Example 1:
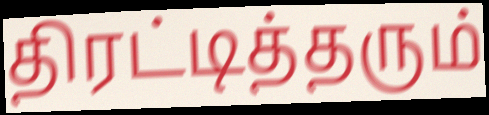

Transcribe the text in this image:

திரட்டித்தரும்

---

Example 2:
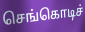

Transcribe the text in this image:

செங்கொடிச்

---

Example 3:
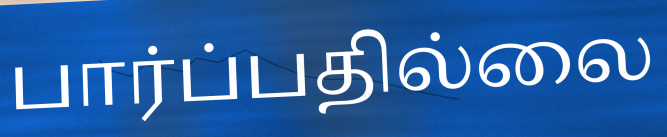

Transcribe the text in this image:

பார்ப்பதில்லை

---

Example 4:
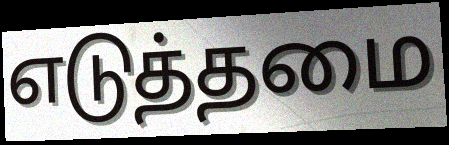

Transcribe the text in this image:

எடுத்தமை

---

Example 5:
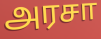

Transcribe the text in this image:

அரசா